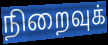
நிறைவுக்